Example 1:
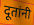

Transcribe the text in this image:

दूतांनी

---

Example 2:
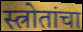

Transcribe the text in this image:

स्त्रोतांचा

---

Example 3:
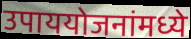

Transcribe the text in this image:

उपाययोजनांमध्ये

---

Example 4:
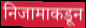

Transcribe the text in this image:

निजामाकडून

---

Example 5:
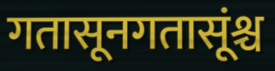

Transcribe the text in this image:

गतासूनगतासूंश्च